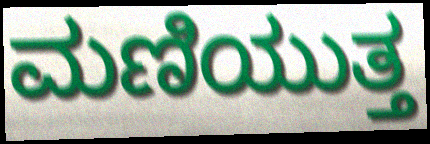
ಮಣಿಯುತ್ತ